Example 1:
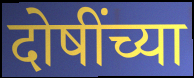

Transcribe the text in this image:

दोषींच्या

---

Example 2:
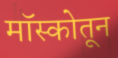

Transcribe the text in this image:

मॉस्कोतून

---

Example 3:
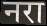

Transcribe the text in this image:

नरा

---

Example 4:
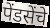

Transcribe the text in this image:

पेंडसेंचे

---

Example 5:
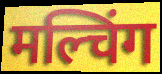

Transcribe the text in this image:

मल्चिंग